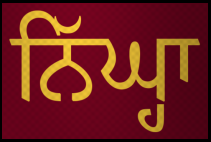
ਨਿੱਘ੍ਹਾ